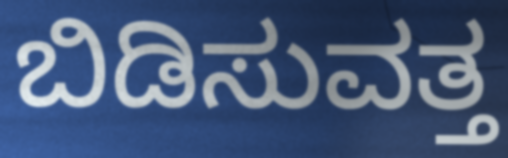
ಬಿಡಿಸುವತ್ತ